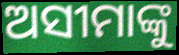
ଅସୀମାଙ୍କୁ